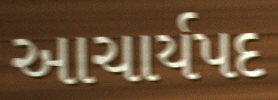
આચાર્યપદ